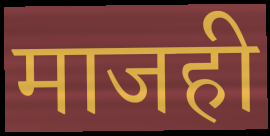
माजही